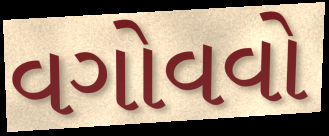
વગોવવો